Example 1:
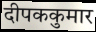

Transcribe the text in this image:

दीपककुमार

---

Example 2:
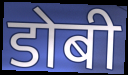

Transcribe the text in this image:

डोबी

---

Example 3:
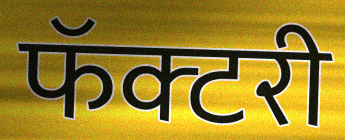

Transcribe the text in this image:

फॅक्‍टरी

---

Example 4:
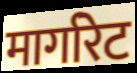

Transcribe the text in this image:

मार्गारेट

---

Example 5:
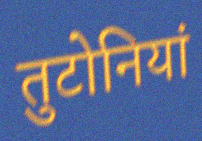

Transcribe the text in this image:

तुटोनियां